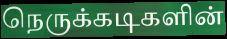
நெருக்கடிகளின்